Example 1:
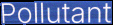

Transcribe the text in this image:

Pollutant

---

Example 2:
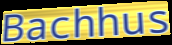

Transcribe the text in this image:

Bachhus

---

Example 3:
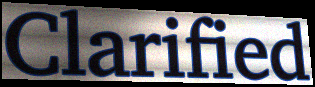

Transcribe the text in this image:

Clarified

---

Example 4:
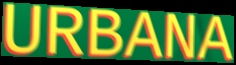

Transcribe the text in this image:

URBANA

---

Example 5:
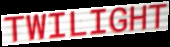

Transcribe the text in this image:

TWILIGHT